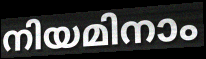
നിയമിനാം